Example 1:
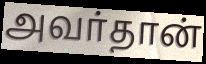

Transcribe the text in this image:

அவர்தான்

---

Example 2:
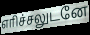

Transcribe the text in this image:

எரிச்சலுடனே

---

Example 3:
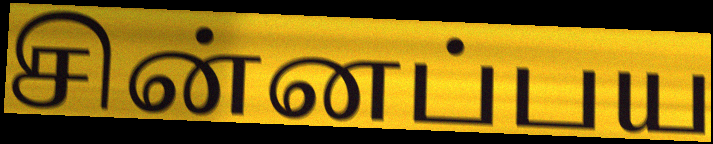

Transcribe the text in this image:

சின்னப்பய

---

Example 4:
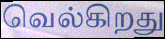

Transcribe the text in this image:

வெல்கிறது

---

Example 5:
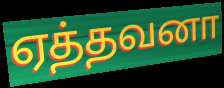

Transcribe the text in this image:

ஏத்தவனா